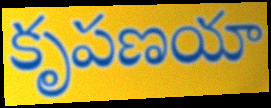
కృపణయా